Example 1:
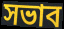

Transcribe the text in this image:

সভাব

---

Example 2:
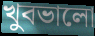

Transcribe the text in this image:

খুবভালো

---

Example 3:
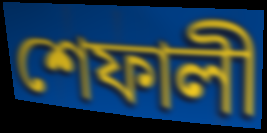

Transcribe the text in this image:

শেফালী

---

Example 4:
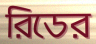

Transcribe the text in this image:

রিডের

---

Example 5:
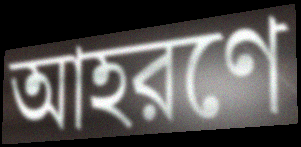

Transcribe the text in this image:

আহরণে